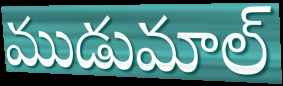
ముడుమాల్